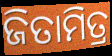
ଜିତାମିତ୍ର